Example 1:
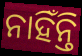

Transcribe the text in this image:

ନାହିଁନ୍ତି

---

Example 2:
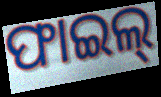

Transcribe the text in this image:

ଫାଇଲ୍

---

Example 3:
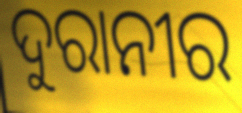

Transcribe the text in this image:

ଦୁରାନୀର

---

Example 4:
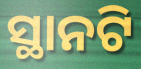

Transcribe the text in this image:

ସ୍ଥାନଟି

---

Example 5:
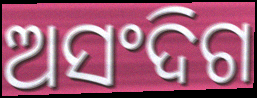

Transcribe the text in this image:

ଅସଂଦିଗ